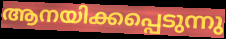
ആനയിക്കപ്പെടുന്നു